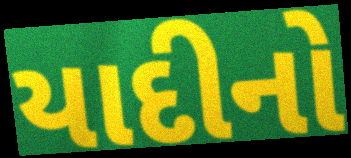
યાદીનો